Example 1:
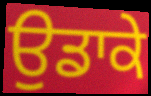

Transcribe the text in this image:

ਉਡਾਕੇ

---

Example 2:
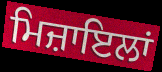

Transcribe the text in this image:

ਮਿਜ਼ਾਇਲਾਂ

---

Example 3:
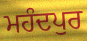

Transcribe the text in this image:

ਮਹੰਦਪੁਰ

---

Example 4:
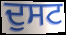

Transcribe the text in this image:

ਦੁਸਟ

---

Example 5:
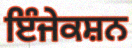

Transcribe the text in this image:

ਇੰਜੇਕਸ਼ਨ